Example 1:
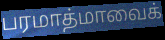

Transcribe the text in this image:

பரமாத்மாவைக்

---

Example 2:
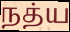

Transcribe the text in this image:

நத்ய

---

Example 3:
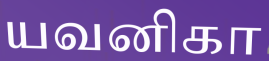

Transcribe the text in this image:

யவனிகா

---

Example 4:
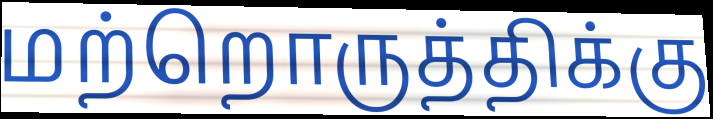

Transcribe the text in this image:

மற்றொருத்திக்கு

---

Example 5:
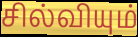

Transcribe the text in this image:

சில்வியும்